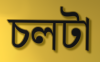
চলটা